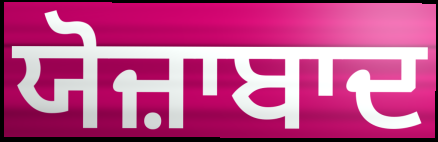
ਯੋਜ਼ਾਬਾਦ